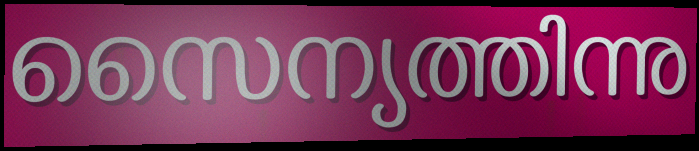
സൈന്യത്തിന്നു